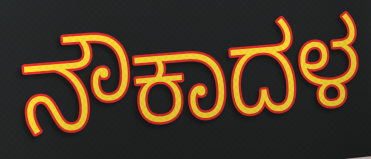
ನೌಕಾದಳ